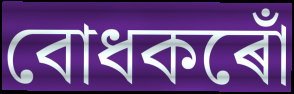
বোধকৰোঁ